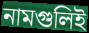
নামগুলিই